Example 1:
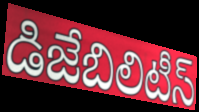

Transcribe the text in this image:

డిజేబిలిటీస్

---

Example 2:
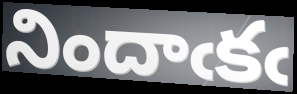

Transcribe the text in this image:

నిందాఁకఁ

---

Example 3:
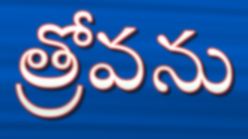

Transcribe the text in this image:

త్రోవను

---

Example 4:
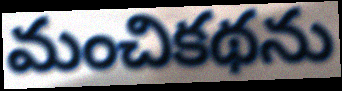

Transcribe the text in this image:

మంచికథను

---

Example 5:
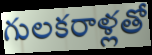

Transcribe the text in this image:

గులకరాళ్లతో